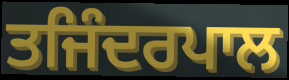
ਤਜਿੰਦਰਪਾਲ